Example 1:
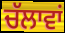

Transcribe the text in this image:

ਚੱਲਾਵਾਂ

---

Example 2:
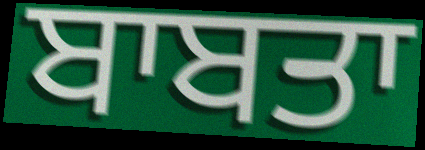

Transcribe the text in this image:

ਬਾਬਤਾ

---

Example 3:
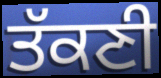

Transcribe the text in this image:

ਤੱਕਣੀ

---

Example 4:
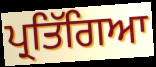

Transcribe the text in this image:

ਪ੍ਰਤਿੱਗਿਆ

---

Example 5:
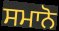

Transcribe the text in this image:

ਸਮਾਨੋ